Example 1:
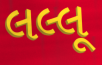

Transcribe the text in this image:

લલ્લૂ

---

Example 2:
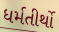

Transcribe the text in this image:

ધર્મતીર્થો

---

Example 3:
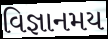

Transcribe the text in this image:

વિજ્ઞાનમય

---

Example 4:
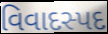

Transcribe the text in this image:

વિવાદસ્પદ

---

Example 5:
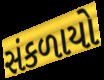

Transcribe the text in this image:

સંકળાયો